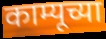
काम्यूच्या